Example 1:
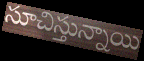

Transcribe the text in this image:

సూచిస్తున్నాయి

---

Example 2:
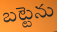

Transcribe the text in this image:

బట్టెను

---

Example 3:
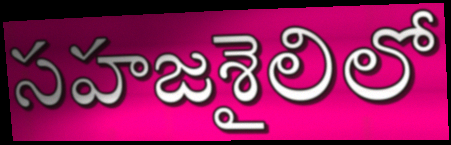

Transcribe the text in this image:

సహజశైలిలో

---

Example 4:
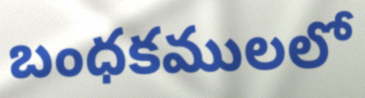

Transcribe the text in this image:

బంధకములలో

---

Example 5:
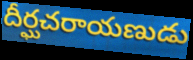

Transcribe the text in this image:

దీర్ఘచరాయణుడు